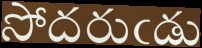
సోదరుఁడు